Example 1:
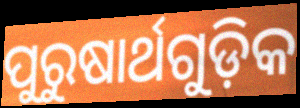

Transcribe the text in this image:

ପୁରୁଷାର୍ଥଗୁଡ଼ିକ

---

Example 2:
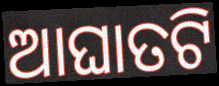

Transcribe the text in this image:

ଆଘାତଟି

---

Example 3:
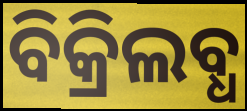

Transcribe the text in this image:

ବିକ୍ରିଲବ୍ଧ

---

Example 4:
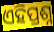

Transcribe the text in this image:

ଏହିପ୍ରଶ୍ନ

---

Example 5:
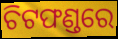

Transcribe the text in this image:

ଚିଟଫଣ୍ଡରେ